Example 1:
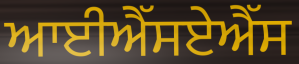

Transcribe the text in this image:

ਆਈਐੱਸਏਐੱਸ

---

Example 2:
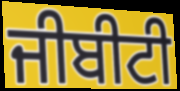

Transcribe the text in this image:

ਜੀਬੀਟੀ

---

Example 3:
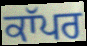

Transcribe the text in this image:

ਕਾੱਪਰ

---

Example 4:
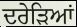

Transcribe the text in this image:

ਦਰੇੜਿਆਂ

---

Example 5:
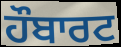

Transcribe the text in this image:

ਹੌਬਾਰਟ